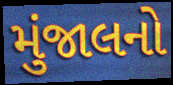
મુંજાલનો